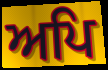
ਅਪਿ